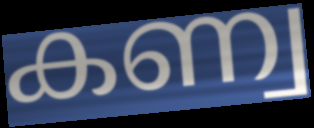
കണ്വ